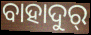
ବାହାଦୁର୍